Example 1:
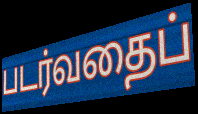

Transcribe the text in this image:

படர்வதைப்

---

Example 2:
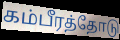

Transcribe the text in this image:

கம்பீரத்தோடு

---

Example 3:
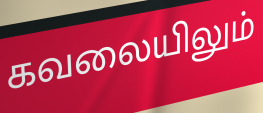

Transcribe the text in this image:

கவலையிலும்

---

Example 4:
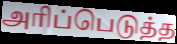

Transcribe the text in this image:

அரிப்பெடுத்த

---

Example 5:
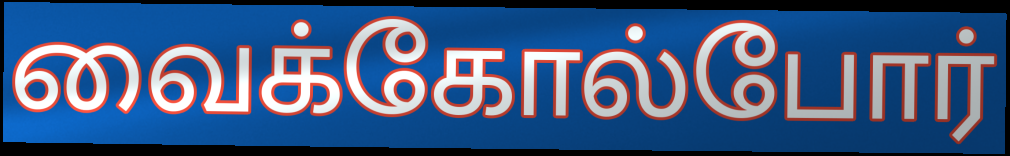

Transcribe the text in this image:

வைக்கோல்போர்